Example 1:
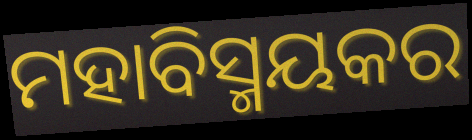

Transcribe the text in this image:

ମହାବିସ୍ମୟକର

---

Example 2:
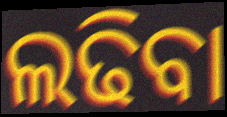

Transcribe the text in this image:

ଲଢିବା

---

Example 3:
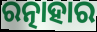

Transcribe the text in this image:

ରତ୍ନାହାର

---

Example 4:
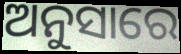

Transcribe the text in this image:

ଅନୁସାରେ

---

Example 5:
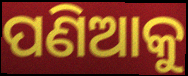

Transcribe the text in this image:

ପଣିଆକୁ